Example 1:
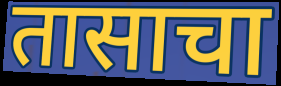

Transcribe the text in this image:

तासाचा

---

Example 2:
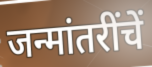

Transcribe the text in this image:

जन्मांतरींचें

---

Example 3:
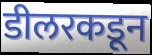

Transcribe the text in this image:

डीलरकडून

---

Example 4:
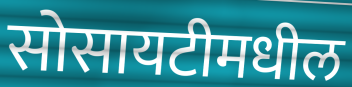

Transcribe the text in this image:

सोसायटीमधील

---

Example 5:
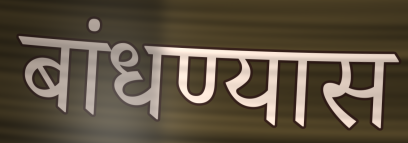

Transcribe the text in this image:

बांधण्यास